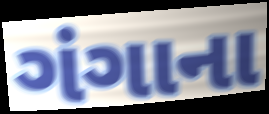
ગંગાના